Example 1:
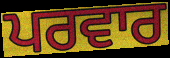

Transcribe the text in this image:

ਪਰਵਾਰ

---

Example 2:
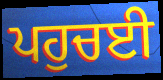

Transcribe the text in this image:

ਪਹੁਚਈ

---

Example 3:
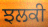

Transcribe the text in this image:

ਝਲਕੀ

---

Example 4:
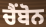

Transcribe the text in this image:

ਚੈਂਬੋਨ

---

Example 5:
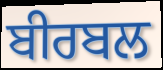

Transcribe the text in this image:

ਬੀਰਬਲ